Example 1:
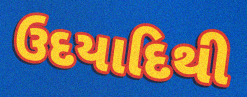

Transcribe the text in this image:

ઉદયાદિથી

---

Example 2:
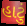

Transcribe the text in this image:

હાટું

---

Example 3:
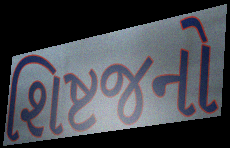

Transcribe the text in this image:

શિષ્ટજનો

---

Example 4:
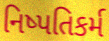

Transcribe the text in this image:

નિષ્પતિકર્મ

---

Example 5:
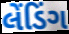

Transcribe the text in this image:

લેંડિંગ